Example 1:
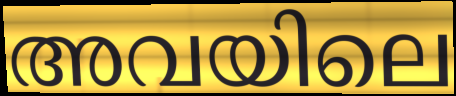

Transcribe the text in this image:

അവയിലെ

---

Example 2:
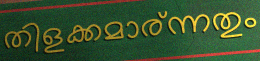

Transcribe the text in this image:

തിളക്കമാര്ന്നതും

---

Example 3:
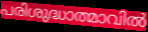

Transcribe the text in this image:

പരിശുദ്ധാത്മാവിൽ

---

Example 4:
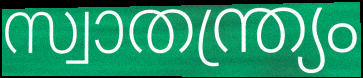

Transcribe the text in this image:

സ്വാതന്ത്ര്യം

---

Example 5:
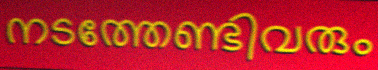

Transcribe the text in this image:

നടത്തേണ്ടിവരും